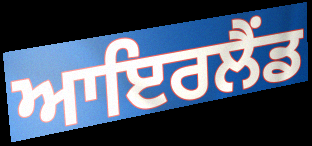
ਆਇਰਲੈੰਡ